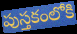
పుస్తకంలోకి